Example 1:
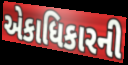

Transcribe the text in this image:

એકાધિકારની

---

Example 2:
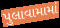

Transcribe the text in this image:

પુલાવામામાં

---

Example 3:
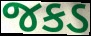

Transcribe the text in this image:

જકડ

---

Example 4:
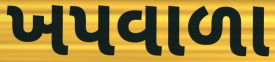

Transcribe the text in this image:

ખપવાળા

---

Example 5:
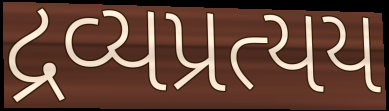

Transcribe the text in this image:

દ્રવ્યપ્રત્યય